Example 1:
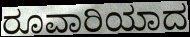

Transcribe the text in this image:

ರೂವಾರಿಯಾದ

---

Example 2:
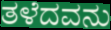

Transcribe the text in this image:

ತಳೆದವನು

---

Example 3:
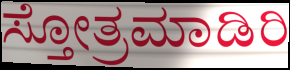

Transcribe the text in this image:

ಸ್ತೋತ್ರಮಾಡಿರಿ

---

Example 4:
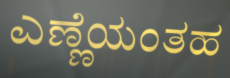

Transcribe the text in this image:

ಎಣ್ಣೆಯಂತಹ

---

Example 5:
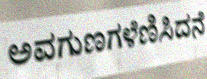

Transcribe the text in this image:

ಅವಗುಣಗಳೆಣಿಸಿದನೆ